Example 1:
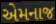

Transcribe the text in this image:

એમનાજ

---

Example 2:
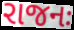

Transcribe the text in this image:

રાજનઃ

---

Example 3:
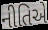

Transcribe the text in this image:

નીતિએ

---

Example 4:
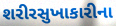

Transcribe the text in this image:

શરીરસુખાકારીના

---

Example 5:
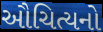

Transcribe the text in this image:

ઔચિત્યનો